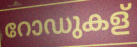
റോഡുകള്